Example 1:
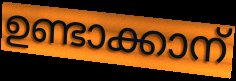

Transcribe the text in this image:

ഉണ്ടാക്കാന്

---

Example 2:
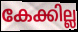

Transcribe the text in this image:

കേക്കില്ല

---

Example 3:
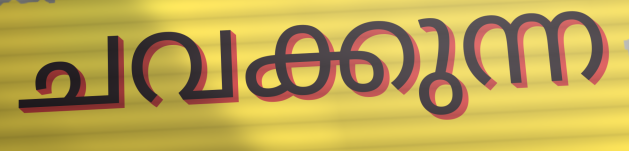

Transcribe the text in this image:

ചവക്കുന്ന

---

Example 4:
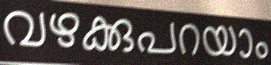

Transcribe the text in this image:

വഴക്കുപറയാം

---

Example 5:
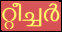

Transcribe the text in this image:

റ്റീച്ചർ